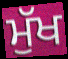
ਮੁੱਖ